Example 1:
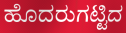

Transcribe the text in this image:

ಹೊದರುಗಟ್ಟಿದ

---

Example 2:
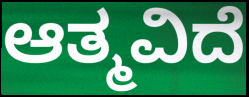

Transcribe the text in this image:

ಆತ್ಮವಿದೆ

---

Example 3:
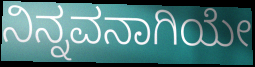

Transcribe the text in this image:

ನಿನ್ನವನಾಗಿಯೇ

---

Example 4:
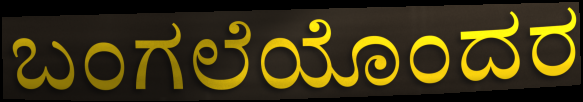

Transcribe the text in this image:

ಬಂಗಲೆಯೊಂದರ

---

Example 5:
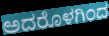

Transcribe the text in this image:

ಅದರೊಳಗಿಂದ